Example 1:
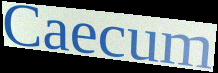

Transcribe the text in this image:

Caecum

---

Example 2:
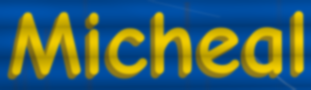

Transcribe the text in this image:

Micheal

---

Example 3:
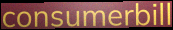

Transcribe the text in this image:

consumerbill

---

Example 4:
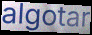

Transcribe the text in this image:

algotar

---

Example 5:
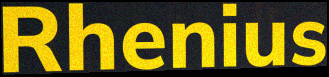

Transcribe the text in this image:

Rhenius